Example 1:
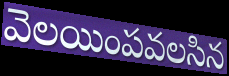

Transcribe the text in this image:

వెలయింపవలసిన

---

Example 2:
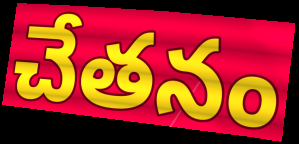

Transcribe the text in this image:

చేతనం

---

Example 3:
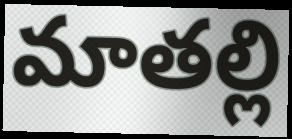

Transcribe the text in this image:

మాతల్లి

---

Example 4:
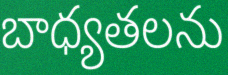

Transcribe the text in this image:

బాధ్యతలను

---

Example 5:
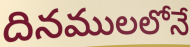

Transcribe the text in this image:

దినములలోనే